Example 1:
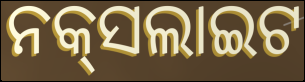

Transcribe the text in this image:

ନକ୍‌ସଲାଇଟ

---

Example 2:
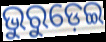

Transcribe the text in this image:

ଭୁରୁଡ଼େଇ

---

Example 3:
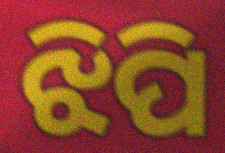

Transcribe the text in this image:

ଝିପି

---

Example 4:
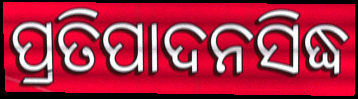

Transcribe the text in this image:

ପ୍ରତିପାଦନସିଦ୍ଧ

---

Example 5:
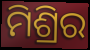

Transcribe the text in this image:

ମିଶ୍ରିର